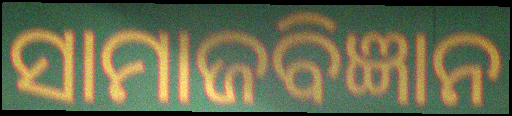
ସାମାଜବିଜ୍ଞାନ